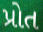
પ્રોત